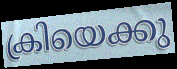
ക്രിയെക്കു